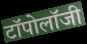
टॉपोलॉजी